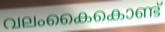
വലംകൈകൊണ്ട്